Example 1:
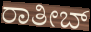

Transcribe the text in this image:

ರಾತೀಬ್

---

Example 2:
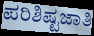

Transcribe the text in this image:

ಪರಿಶಿಷ್ಟಜಾತಿ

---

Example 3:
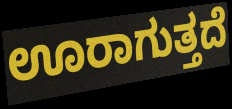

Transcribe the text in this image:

ಊರಾಗುತ್ತದೆ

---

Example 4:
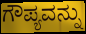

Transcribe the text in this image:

ಗೌಪ್ಯವನ್ನು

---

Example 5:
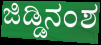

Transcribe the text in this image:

ಜಿಡ್ಡಿನಂಶ